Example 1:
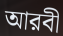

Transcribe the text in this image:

আরবী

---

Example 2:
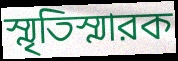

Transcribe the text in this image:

স্মৃতিস্মারক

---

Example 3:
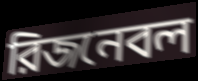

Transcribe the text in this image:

রিজনেবল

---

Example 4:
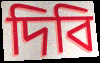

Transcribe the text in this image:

দিবি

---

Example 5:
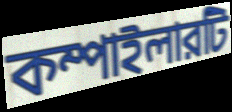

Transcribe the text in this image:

কম্পাইলারটি